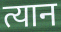
त्यान